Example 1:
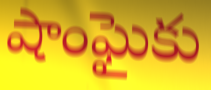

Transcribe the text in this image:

షాంఘైకు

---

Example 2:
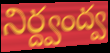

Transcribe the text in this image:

నిర్ద్వంద్వ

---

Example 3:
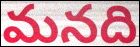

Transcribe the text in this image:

మనది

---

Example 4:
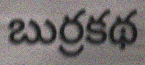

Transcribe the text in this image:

బుర్రకథ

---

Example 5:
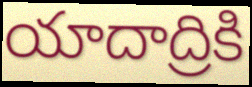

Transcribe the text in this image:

యాదాద్రికి